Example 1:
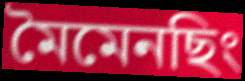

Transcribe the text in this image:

মৈমেনছিং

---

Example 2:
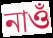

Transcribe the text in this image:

নাওঁ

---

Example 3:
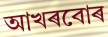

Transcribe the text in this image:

আখৰবোৰ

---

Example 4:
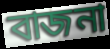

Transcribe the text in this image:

বাজনা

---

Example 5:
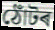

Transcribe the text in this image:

ঠোঁটৰ